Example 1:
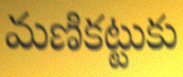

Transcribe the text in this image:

మణికట్టుకు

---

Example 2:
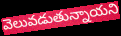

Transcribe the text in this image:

వెలువడుతున్నాయని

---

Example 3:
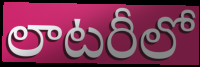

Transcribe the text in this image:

లాటరీలో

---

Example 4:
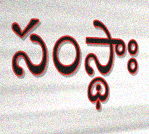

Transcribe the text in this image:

సంస్థాః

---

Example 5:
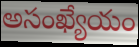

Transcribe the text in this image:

అసంఖ్యేయం